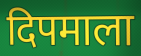
दिपमाला